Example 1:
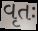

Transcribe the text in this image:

વૃતઃ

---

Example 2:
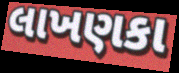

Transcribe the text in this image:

લાખણકા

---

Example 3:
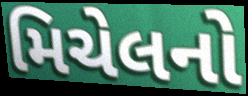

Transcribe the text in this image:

મિચેલનો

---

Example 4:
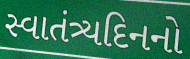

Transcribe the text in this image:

સ્વાતંત્ર્યદિનનો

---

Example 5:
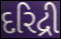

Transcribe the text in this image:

દરિદ્રી